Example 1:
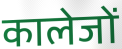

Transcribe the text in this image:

कालेजों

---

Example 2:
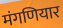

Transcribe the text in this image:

मंगणियार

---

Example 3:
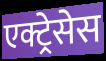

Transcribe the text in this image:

एक्ट्रेसेस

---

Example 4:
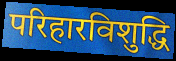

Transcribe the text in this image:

परिहारविशुद्धि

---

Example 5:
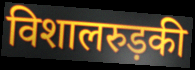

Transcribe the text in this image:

विशालरुड़की